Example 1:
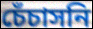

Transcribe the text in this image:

চেঁচাসনি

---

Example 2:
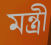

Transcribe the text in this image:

মন্ত্রী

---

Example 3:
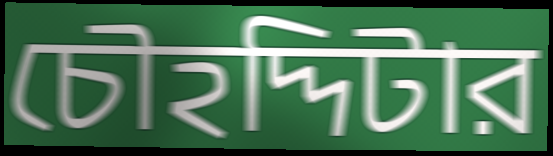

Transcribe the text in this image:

চৌহদ্দিটার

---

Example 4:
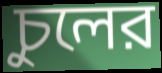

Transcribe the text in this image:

চুলের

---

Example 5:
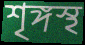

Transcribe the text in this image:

শৃঙ্গস্থ